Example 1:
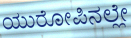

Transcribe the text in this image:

ಯುರೋಪಿನಲ್ಲೇ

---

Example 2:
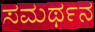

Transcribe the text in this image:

ಸಮರ್ಥನ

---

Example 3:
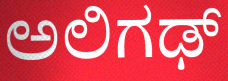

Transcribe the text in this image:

ಅಲಿಗಢ್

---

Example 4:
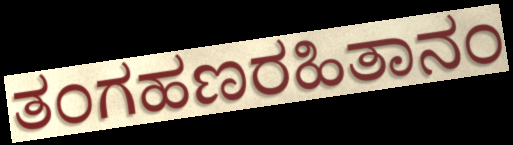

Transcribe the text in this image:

ತಂಗಹಣರಹಿತಾನಂ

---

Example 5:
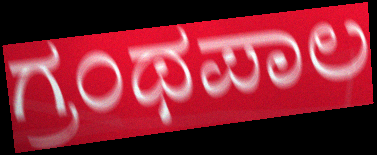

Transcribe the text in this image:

ಗ್ರಂಥಪಾಲ